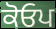
ਕੋਓਪ